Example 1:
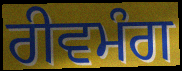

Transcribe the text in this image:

ਰੀਵਮੰਗ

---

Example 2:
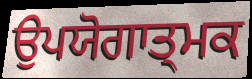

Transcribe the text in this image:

ਉਪਯੋਗਾਤ੍ਮਕ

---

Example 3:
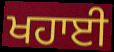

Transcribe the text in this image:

ਖਹਾਈ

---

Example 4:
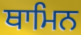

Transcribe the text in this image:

ਥਾਮਿਨ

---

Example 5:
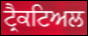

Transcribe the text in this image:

ਟ੍ਰੈਕਟਿਅਲ